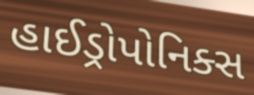
હાઈડ્રોપોનિક્સ